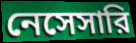
নেসেসারি